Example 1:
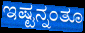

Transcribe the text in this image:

ಇಷ್ಟನ್ನಂತೂ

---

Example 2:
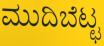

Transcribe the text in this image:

ಮುದಿಬೆಟ್ಟ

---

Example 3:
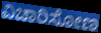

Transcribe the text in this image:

ವಿಚಾರಿಸೋಣ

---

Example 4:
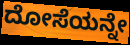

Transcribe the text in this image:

ದೋಸೆಯನ್ನೇ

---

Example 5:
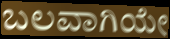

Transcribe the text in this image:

ಬಲವಾಗಿಯೇ